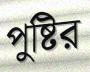
পুষ্টির